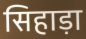
सिहाड़ा